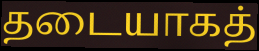
தடையாகத்